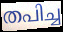
തപിച്ച